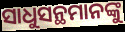
ସାଧୁସନ୍ଥମାନଙ୍କୁ